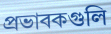
প্রভাবকগুলি